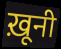
ख़ूनी